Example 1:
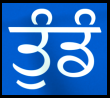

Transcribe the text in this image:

ਤੁੰਡੰ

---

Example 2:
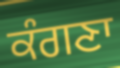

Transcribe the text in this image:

ਕੰਗਣਾ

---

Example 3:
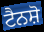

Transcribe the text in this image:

ਟੈਨਸ਼ੋ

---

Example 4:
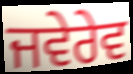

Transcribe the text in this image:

ਜਵੇਰੇਵ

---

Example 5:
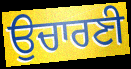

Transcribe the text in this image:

ਉਚਾਰਣੀ